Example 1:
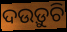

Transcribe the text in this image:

ଦଉଡ଼ୁଚି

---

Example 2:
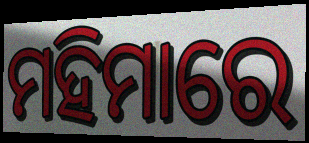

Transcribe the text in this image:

ମହିମାରେ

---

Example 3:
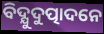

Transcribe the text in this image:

ବିଦ୍ଯୁଦୁତ୍ପାଦନେ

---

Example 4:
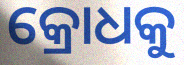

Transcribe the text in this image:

କ୍ରୋଧକୁ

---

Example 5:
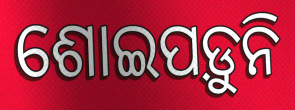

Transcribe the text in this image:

ଶୋଇପଡ଼ୁନି